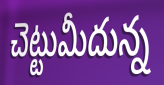
చెట్టుమీదున్న